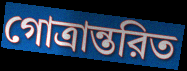
গোত্রান্তরিত